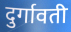
दुर्गावती